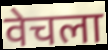
वेचला